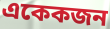
একেকজন